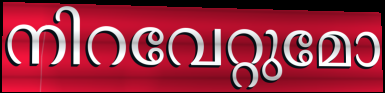
നിറവേറ്റുമോ